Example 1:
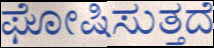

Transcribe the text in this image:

ಘೋಷಿಸುತ್ತದೆ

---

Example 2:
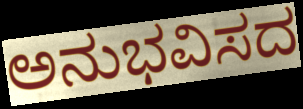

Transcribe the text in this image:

ಅನುಭವಿಸದ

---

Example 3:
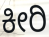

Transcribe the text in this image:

ಕೀರಿ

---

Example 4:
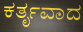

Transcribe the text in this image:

ಕರ್ತೃವಾದ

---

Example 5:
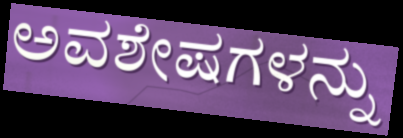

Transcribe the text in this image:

ಅವಶೇಷಗಳನ್ನು